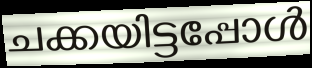
ചക്കയിട്ടപ്പോൾ